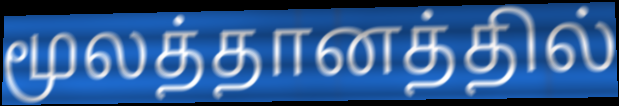
மூலத்தானத்தில்